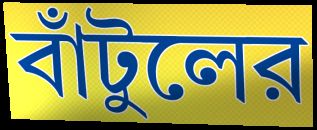
বাঁটুলের